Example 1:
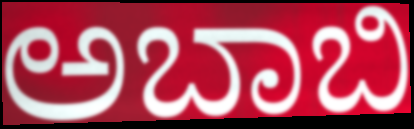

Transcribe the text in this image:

ಅಬಾಬಿ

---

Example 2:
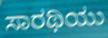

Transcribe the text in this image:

ಸಾರಥಿಯು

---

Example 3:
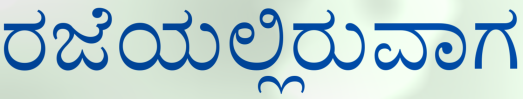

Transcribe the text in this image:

ರಜೆಯಲ್ಲಿರುವಾಗ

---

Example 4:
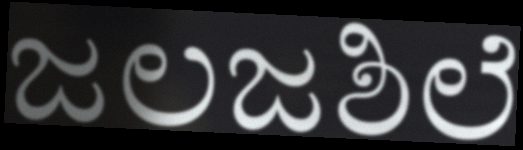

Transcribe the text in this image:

ಜಲಜಶಿಲೆ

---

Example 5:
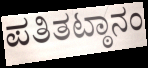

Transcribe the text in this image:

ಪತಿತಟ್ಠಾನಂ